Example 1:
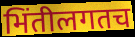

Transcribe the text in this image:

भिंतीलगतच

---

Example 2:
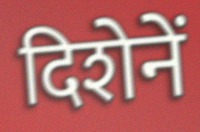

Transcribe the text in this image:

दिशेनें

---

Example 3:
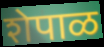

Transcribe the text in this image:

शेपाळ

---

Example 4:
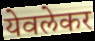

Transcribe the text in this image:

येवलेकर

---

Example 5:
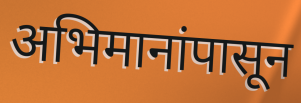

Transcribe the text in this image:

अभिमानांपासून